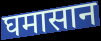
घमासान